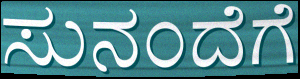
ಸುನಂದೆಗೆ